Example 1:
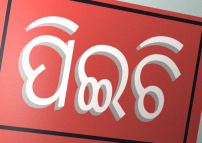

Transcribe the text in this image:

ପିଇଚି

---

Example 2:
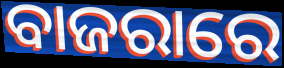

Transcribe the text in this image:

ବାଜରାରେ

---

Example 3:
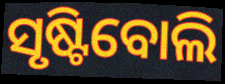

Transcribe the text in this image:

ସୃଷ୍ଟିବୋଲି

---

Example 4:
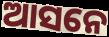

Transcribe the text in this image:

ଆସନେ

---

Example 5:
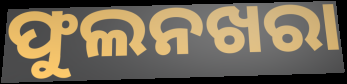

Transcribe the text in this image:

ଫୁଲନଖରା